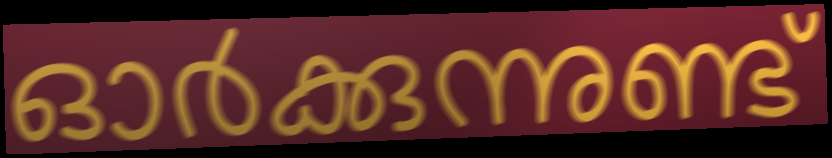
ഓർക്കുന്നുണ്ട്